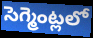
సెగ్మెంట్లలో